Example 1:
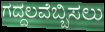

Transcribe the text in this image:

ಗದ್ದಲವೆಬ್ಬಿಸಲು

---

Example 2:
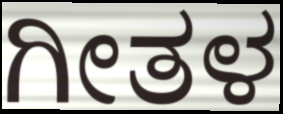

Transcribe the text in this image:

ಗೀತಳ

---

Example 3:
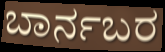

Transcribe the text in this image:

ಬಾರ್ನಬರ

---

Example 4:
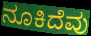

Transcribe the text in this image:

ನೂಕಿದೆವು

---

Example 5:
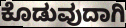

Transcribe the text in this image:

ಕೊಡುವುದಾಗಿ